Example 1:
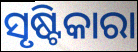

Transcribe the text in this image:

ସୃଷ୍ଟିକାରା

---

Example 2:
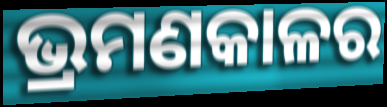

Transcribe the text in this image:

ଭ୍ରମଣକାଳର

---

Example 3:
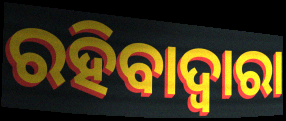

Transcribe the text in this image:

ରହିବାଦ୍ଵାରା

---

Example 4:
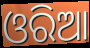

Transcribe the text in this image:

ଓରିଆ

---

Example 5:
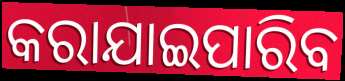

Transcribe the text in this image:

କରାଯାଇପାରିବ